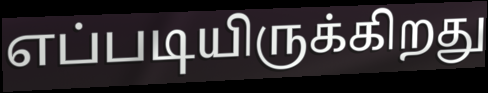
எப்படியிருக்கிறது